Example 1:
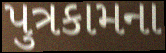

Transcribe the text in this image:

પુત્રકામના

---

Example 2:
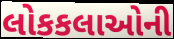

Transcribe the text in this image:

લોકકલાઓની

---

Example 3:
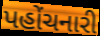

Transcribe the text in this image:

પહોંચનારી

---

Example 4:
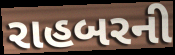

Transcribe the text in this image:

રાહબરની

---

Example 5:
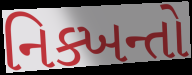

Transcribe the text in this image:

નિક્ખન્તો